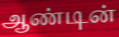
ஆண்டின்